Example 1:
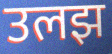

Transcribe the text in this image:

उलझ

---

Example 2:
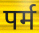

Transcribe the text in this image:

पर्म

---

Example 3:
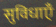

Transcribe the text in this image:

सुविधाएँ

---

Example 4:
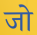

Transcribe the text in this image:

जो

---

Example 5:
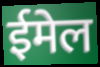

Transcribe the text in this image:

ईमेल